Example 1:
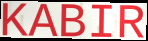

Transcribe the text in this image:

KABIR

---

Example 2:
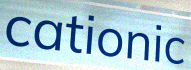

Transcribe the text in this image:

cationic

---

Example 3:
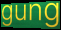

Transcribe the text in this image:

gung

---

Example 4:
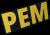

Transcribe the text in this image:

PEM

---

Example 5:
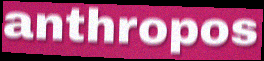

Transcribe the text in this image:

anthropos